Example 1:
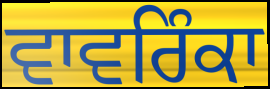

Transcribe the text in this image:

ਵਾਵਰਿੰਕਾ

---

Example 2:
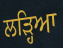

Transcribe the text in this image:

ਲੜ੍ਹਿਆ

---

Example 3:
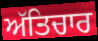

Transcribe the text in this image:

ਅੱਤਿਚਾਰ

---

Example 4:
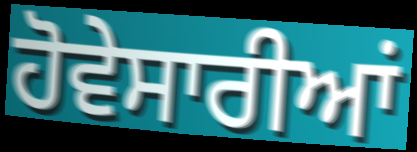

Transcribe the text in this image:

ਹੋਵੇਸਾਰੀਆਂ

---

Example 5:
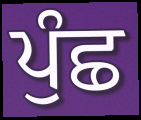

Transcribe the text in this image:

ਪੁੰਛ